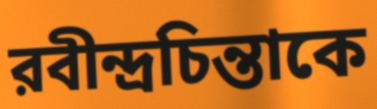
রবীন্দ্রচিন্তাকে